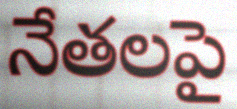
నేతలపై